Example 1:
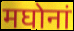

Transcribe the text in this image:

मघोनां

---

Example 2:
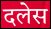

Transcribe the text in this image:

दलेस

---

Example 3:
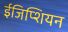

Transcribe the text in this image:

ईजिप्शियन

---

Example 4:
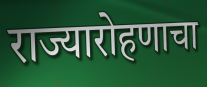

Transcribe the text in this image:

राज्यारोहणाचा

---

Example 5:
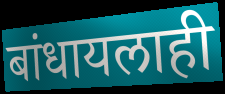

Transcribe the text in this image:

बांधायलाही